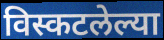
विस्कटलेल्या